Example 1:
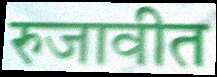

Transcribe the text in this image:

रुजावीत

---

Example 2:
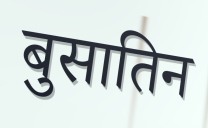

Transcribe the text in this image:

बुसातिन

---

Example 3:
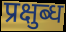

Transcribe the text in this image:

प्रक्षुब्ध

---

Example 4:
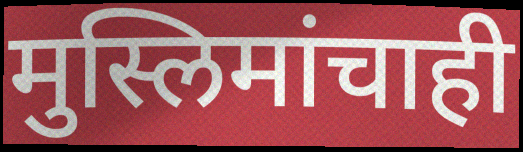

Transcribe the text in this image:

मुस्लिमांचाही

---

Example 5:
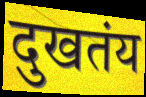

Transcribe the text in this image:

दुखतंय